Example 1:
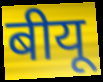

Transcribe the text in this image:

बीयू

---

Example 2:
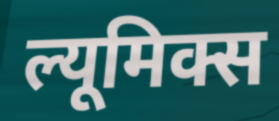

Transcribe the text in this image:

ल्यूमिक्स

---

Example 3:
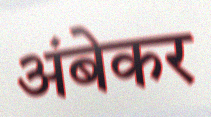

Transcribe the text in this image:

अंबेकर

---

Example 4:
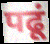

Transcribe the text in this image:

पढूं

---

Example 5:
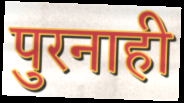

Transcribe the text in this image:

पुरनाही